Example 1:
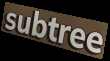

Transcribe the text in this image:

subtree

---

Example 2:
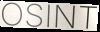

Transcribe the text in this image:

OSINT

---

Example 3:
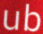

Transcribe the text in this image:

ub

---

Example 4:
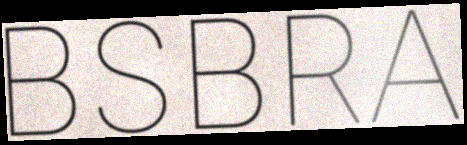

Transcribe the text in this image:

BSBRA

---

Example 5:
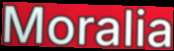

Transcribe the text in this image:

Moralia